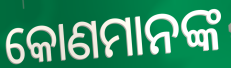
କୋଣମାନଙ୍କ